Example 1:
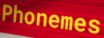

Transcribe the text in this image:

Phonemes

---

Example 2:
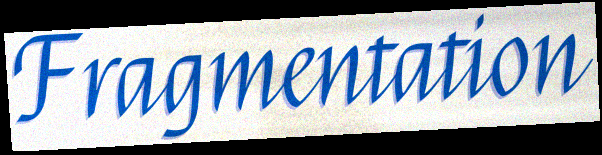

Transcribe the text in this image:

Fragmentation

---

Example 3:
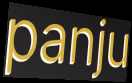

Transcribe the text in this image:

panju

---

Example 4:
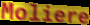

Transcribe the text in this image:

Moliere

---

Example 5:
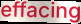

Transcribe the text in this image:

effacing